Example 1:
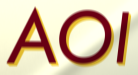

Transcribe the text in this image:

AOI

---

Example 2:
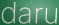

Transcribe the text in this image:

daru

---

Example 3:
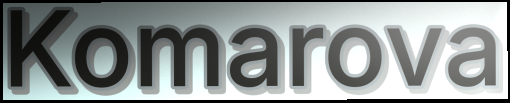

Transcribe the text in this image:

Komarova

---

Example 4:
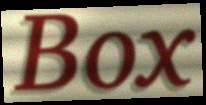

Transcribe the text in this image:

Box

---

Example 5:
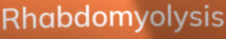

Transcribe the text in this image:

Rhabdomyolysis